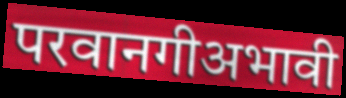
परवानगीअभावी